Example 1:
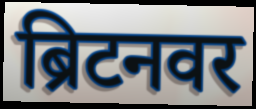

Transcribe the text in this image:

ब्रिटनवर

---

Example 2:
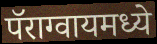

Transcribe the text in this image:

पॅराग्वायमध्ये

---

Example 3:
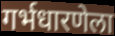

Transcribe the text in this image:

गर्भधारणेला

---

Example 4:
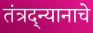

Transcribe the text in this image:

तंत्रद्न्यानाचे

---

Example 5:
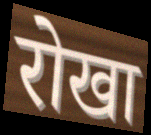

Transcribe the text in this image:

रोखा